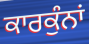
ਕਾਰਕੁੰਨਾਂ